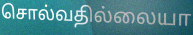
சொல்வதில்லையா